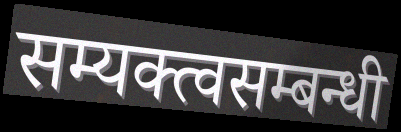
सम्यक्त्वसम्बन्धी